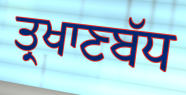
ਤ੍ਰਖਾਣਬੱਧ